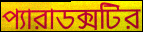
প্যারাডক্সটির